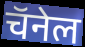
चॅनेल